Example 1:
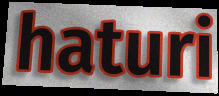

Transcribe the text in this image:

haturi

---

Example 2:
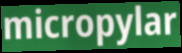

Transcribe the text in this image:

micropylar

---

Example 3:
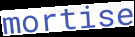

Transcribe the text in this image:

mortise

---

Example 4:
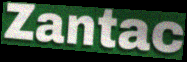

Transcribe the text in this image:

Zantac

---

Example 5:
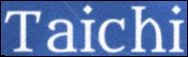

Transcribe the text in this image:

Taichi